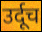
उर्दूच